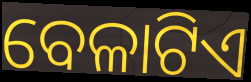
ବେଳାଟିଏ